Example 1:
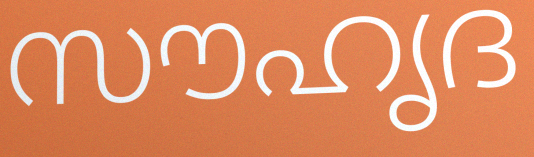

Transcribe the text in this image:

സൗഹൃദ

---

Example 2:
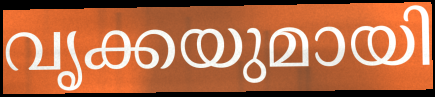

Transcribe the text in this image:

വൃക്കയുമായി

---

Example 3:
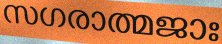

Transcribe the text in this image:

സഗരാത്മജാഃ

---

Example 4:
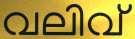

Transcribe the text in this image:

വലിവ്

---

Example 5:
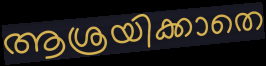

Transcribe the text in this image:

ആശ്രയിക്കാതെ